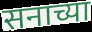
सनाच्या